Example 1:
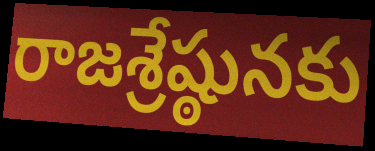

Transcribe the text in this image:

రాజశ్రేష్ఠునకు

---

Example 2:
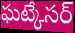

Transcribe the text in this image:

ఘట్కేసర్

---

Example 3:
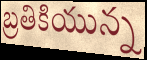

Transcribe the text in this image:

బ్రతికియున్న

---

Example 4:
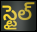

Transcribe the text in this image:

స్టైల్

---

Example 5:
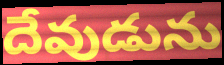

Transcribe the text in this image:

దేవుడును